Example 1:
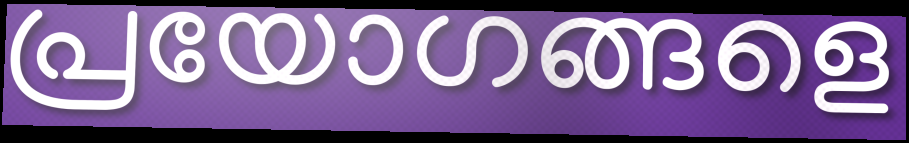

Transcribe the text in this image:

പ്രയോഗങ്ങളെ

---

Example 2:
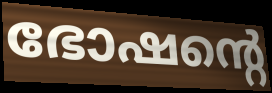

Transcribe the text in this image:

ഭോഷന്റെ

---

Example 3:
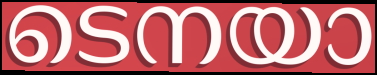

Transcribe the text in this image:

ടെനയാ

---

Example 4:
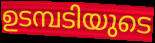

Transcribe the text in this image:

ഉടമ്പടിയുടെ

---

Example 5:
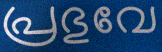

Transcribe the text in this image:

പ്രഭുവേ